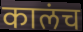
कालंच